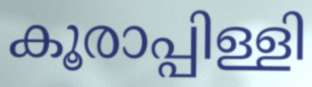
കൂരാപ്പിള്ളി